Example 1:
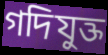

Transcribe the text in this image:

গদিযুক্ত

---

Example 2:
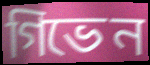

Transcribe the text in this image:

গিভেন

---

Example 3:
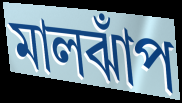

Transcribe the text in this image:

মালঝাঁপ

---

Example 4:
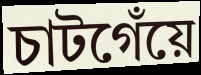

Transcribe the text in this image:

চাটগেঁয়ে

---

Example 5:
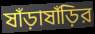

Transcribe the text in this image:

ষাঁড়াষাঁড়ির